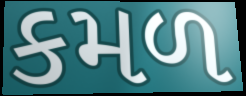
કમળ